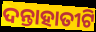
ଦନ୍ତାହାତୀଟି